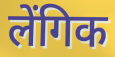
लेंगिक